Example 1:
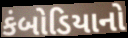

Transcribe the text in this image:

કંબોડિયાનો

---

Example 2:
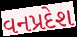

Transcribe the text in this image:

વનપ્રદેશ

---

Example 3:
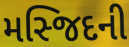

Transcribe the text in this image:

મસ્જિદની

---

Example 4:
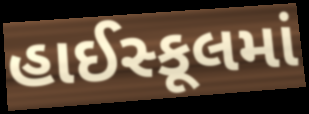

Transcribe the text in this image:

હાઈસ્કૂલમાં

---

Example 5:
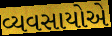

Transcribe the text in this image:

વ્યવસાયોએ